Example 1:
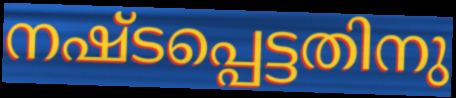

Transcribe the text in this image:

നഷ്ടപ്പെട്ടതിനു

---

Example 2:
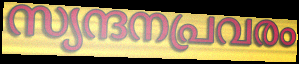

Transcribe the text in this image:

സ്യന്ദനപ്രവരം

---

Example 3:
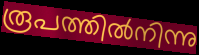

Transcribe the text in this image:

രൂപത്തിൽനിന്നു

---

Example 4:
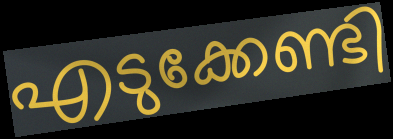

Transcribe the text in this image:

എടുക്കേണ്ടി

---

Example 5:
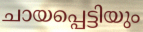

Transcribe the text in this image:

ചായപ്പെട്ടിയും